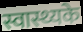
स्वास्थ्यके